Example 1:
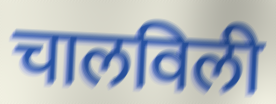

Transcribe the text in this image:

चालविली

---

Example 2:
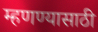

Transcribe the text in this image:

म्हणण्यासाठी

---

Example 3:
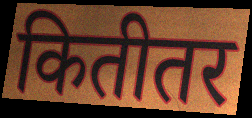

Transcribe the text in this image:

कितीतर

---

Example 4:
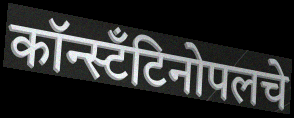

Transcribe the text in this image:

कॉन्स्टँटिनोपलचे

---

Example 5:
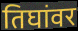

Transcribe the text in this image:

तिघांवर